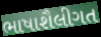
ભાષાશૈલીગત